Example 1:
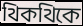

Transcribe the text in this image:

থিকথিকে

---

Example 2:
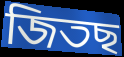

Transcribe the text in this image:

জিতছ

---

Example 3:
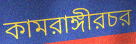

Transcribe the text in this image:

কামরাঙ্গীরচর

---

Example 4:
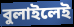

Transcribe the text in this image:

বুলাইলেই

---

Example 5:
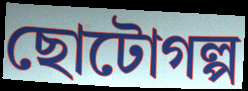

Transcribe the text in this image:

ছোটোগল্প